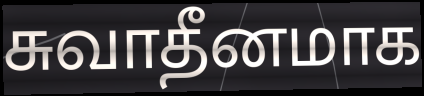
சுவாதீனமாக